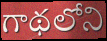
గాథలోని